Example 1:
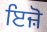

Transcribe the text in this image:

ਇਜ਼ੋ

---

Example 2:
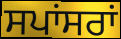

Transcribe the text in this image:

ਸਪਾਂਸਰਾਂ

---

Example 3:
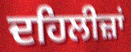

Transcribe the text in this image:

ਦਹਿਲੀਜ਼ਾਂ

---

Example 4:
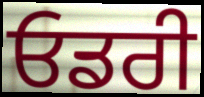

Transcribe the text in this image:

ਓਡਰੀ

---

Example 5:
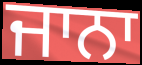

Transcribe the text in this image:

ਜਾਨਾ